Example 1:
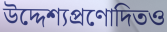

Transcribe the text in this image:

উদ্দেশ্যপ্রণোদিতও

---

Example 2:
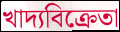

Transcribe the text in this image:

খাদ্যবিক্রেতা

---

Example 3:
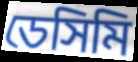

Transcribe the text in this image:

ডেসিমি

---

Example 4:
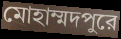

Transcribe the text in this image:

মোহাম্মদপুরে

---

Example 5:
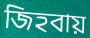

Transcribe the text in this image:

জিহবায়